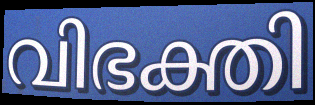
വിഭക്തി